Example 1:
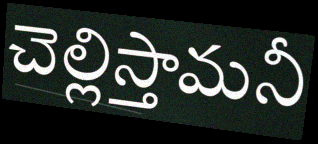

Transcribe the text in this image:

చెల్లిస్తామనీ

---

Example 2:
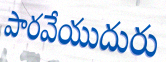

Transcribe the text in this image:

పారవేయుదురు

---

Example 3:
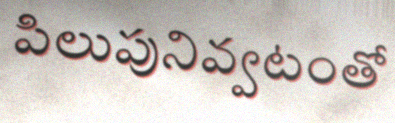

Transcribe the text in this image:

పిలుపునివ్వటంతో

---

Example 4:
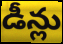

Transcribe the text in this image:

డీన్లు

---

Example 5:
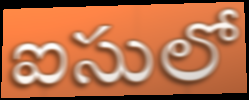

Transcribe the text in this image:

ఐసులో